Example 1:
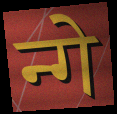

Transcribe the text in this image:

न्गे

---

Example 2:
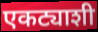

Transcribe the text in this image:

एकट्याशी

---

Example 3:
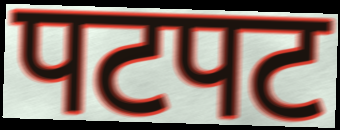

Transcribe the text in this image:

पटपट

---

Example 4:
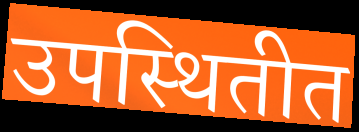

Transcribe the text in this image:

उपस्थितीत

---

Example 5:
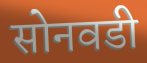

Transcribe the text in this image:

सोनवडी